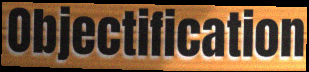
Objectification